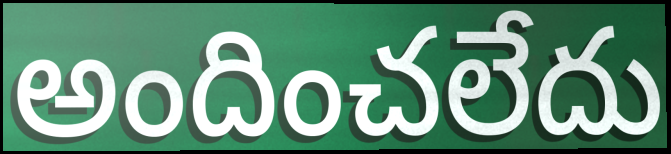
అందించలేదు